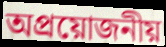
অপ্রয়োজনীয়